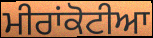
ਮੀਰਾਂਕੋਟੀਆ